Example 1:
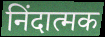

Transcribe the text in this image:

निंदात्मक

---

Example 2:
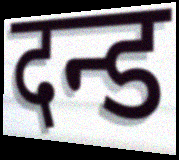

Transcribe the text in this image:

दन्ड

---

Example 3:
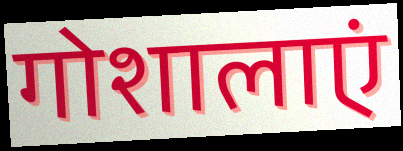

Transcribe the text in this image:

गोशालाएं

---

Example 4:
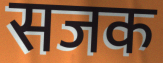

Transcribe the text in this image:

सजक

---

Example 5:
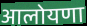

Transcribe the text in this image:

आलोयणा